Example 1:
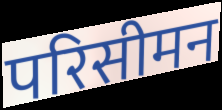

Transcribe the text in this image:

परिसीमन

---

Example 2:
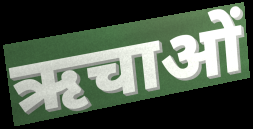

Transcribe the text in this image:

ऋचाओं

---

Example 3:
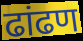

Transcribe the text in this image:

ढांढण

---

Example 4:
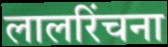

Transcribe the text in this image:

लालरिंचना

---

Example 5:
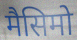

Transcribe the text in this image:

मैसिमो